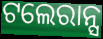
ଟଲେରାନ୍ସ